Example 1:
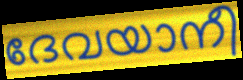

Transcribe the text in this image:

ദേവയാനീ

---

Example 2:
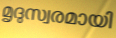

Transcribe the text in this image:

മൃദുസ്വരമായി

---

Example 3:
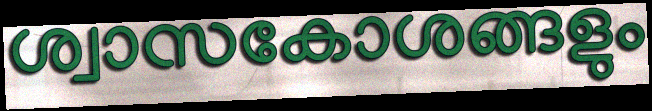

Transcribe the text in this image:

ശ്വാസകോശങ്ങളും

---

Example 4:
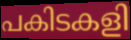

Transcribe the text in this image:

പകിടകളി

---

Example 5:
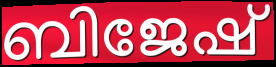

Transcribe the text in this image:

ബിജേഷ്